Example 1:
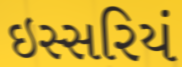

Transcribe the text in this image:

ઇસ્સરિયં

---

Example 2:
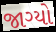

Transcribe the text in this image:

જાગ્યો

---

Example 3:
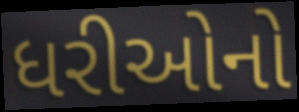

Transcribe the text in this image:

ધરીઓનો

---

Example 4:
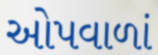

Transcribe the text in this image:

ઓપવાળાં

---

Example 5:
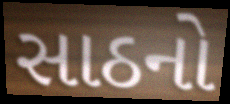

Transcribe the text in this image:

સાઠનો